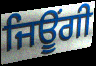
ਜਿਊਂਗੀ